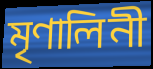
মৃণালিনী